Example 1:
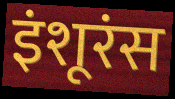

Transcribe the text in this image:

इंशूरंस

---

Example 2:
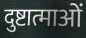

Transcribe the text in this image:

दुष्टात्माओं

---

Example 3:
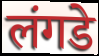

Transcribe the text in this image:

लंगडे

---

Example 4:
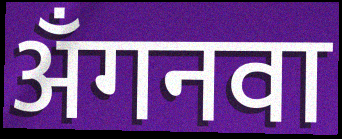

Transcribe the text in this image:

अँगनवा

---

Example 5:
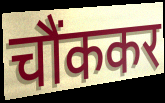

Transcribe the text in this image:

चौंककर